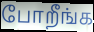
போறீங்க